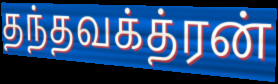
தந்தவக்த்ரன்